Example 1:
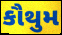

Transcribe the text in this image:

કૌથુમ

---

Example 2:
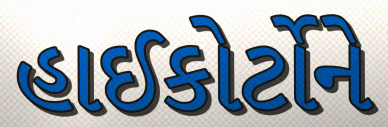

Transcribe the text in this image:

હાઈકોર્ટોને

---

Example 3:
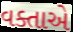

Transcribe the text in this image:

વક્તાએ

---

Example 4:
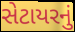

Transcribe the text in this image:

સેટાયરનું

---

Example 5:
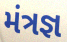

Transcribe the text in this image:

મંત્રજ્ઞ